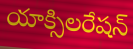
యాక్సిలరేషన్